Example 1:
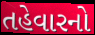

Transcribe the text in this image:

તહેવારનો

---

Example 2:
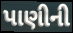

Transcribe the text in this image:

પાણીની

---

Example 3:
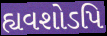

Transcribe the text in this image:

હ્યવશોઽપિ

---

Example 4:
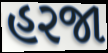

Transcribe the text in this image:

હરજા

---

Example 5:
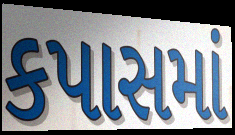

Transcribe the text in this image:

કપાસમાં